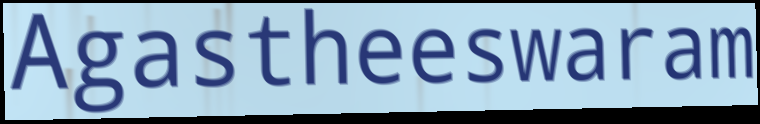
Agastheeswaram